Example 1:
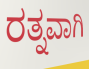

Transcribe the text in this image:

ರತ್ನವಾಗಿ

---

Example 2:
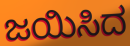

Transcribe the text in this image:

ಜಯಿಸಿದ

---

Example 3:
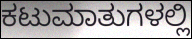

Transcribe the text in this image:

ಕಟುಮಾತುಗಳಲ್ಲಿ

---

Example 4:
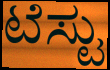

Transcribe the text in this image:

ಟೆಸ್ಟು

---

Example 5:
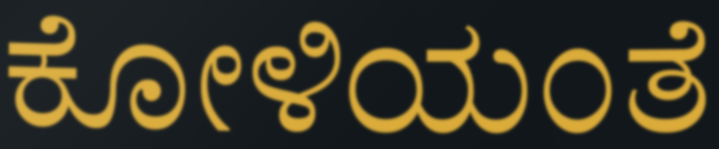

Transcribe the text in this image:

ಕೋಳಿಯಂತೆ